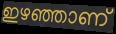
ഇഴഞ്ഞാണ്